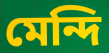
মেন্দি